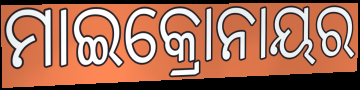
ମାଇକ୍ରୋନାୟର